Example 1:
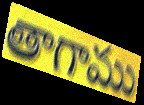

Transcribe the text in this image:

తాగాము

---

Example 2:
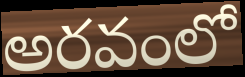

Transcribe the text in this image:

అరవంలో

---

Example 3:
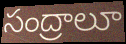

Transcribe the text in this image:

సంద్రాలూ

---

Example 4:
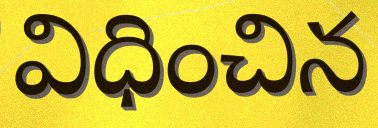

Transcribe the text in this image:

విధించిన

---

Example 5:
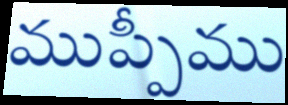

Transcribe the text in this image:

ముప్పీము